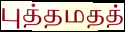
புத்தமதத்